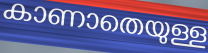
കാണാതെയുള്ള